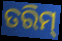
ତରିମ୍